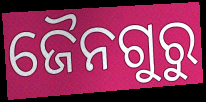
ଜୈନଗୁରୁ